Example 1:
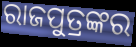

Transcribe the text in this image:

ରାଜପୁତ୍ରଙ୍କର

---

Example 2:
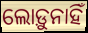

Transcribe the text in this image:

ଲୋଡ଼ୁନାହିଁ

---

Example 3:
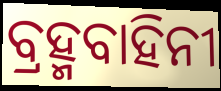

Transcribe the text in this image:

ବ୍ରହ୍ମବାହିନୀ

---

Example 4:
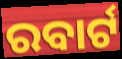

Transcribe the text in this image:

ରବାର୍ଟ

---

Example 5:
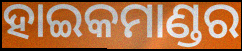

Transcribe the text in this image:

ହାଇକମାଣ୍ଡର